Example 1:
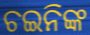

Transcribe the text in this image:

ଚଇନିଙ୍କ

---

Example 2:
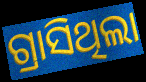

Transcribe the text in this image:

ଗ୍ରାସିଥିଲା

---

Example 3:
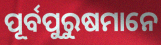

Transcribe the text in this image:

ପୂର୍ବପୁରୁଷମାନେ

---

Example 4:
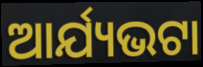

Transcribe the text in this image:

ଆର୍ଯ୍ୟଭଟା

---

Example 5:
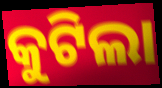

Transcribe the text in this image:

କୁଟିଲା